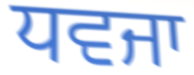
ਧਵਜਾ